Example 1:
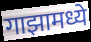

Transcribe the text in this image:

गाझामध्ये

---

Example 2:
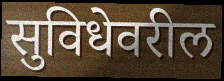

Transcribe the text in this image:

सुविधेवरील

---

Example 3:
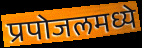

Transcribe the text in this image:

प्रपोजलमध्ये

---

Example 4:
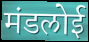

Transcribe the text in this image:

मंडलोई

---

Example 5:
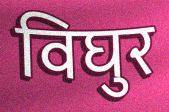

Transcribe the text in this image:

विघुर